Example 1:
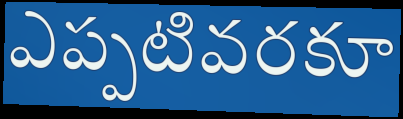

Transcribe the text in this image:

ఎప్పటివరకూ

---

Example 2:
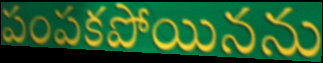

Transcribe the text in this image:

పంపకపోయినను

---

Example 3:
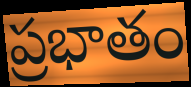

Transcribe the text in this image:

ప్రభాతం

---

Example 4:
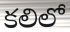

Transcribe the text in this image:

కలిలో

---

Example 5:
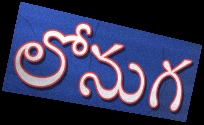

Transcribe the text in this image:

లోనుగ